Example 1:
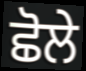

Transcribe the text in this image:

ਛੋਲੇ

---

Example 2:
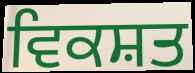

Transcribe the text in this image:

ਵਿਕਸ਼ਤ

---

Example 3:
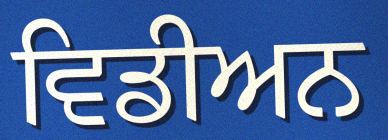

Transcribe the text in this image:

ਵਿਡੀਅਨ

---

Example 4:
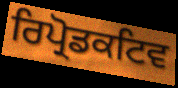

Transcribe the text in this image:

ਰਿਪ੍ਰੋਡਕਟਿਵ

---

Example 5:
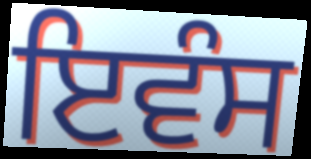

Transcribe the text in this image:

ਇਵੰਸ